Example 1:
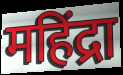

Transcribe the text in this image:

महिंद्रा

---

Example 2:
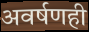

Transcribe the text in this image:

अवर्षणही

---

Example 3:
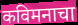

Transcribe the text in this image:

कविमनाचा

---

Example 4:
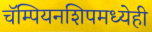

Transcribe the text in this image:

चॅम्पियनशिपमध्येही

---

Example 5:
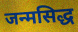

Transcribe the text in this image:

जन्मसिद्ध